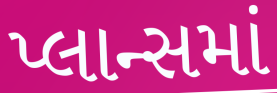
પ્લાન્સમાં